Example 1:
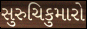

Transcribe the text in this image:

સુરુચિકુમારો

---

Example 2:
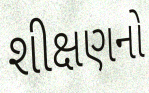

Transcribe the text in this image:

શીક્ષણનો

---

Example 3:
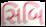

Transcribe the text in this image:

સિબિ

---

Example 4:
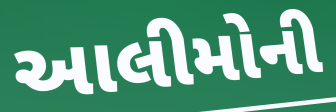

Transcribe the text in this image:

આલીમોની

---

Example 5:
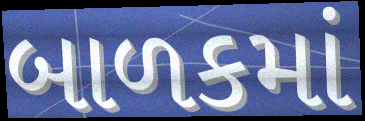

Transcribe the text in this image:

બાળકમાં